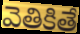
వెతికితే